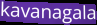
kavanagala